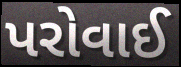
પરોવાઈ